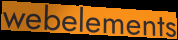
webelements